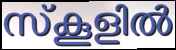
സ്‌കൂളിൽ